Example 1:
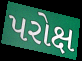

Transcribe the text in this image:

પરોક્ષ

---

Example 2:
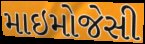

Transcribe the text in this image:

માઇમોજેસી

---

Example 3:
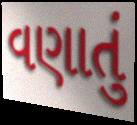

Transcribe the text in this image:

વણાતું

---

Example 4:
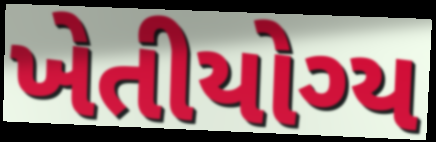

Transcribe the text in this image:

ખેતીયોગ્ય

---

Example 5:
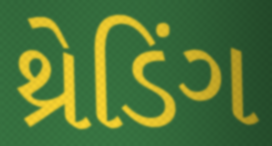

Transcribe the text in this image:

થ્રેડિંગ